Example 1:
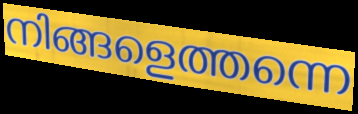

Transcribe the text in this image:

നിങ്ങളെത്തന്നെ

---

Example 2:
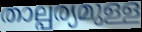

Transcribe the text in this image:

താല്പര്യമുള്ള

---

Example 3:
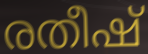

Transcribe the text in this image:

രതീഷ്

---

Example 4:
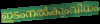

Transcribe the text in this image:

ഇടംനൽകുംവിധം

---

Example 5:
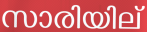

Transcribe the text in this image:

സാരിയില്